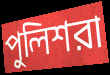
পুলিশরা